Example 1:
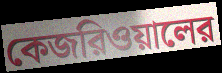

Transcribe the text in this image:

কেজরিওয়ালের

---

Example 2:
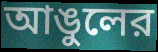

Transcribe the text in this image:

আঙুলের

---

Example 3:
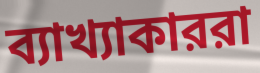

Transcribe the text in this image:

ব্যাখ্যাকাররা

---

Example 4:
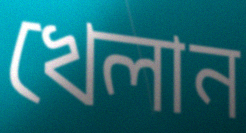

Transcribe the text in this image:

খেলান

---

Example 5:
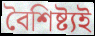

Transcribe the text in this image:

বৈশিষ্ট্যই